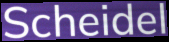
Scheidel